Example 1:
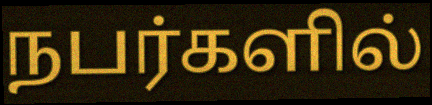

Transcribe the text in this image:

நபர்களில்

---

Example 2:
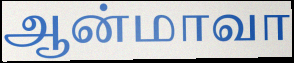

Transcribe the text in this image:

ஆன்மாவா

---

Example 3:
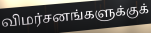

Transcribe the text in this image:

விமர்சனங்களுக்குக்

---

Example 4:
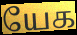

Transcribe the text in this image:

யேக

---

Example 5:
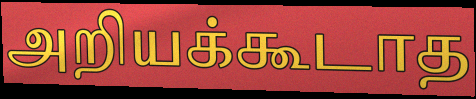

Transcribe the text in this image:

அறியக்கூடாத